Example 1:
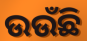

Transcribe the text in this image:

ଉଉଁଛି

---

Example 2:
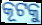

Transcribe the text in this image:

କୂଟକୁ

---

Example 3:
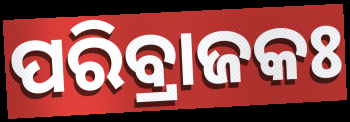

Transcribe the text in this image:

ପରିବ୍ରାଜକଃ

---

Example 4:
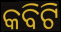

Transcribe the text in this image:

କବିଟି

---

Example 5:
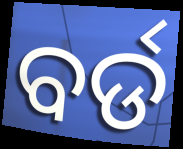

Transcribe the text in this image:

ବର୍ଡ